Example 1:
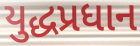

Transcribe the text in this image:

યુદ્ધપ્રધાન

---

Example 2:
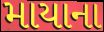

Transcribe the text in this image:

માયાના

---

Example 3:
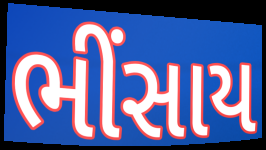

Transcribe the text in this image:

ભીંસાય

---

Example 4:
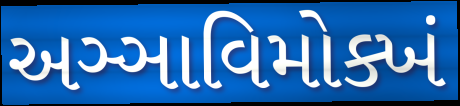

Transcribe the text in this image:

અઞ્ઞાવિમોક્ખં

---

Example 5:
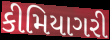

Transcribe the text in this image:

કીમિયાગરી